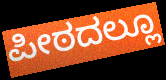
ಪೀಠದಲ್ಲೂ